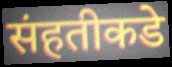
संहतीकडे